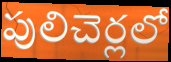
పులిచెర్లలో